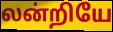
லன்றியே